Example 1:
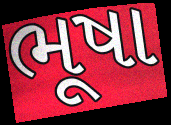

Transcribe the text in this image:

ભૂષા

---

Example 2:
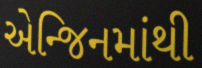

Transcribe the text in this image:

એન્જિનમાંથી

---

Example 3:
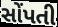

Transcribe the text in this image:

સોંપતી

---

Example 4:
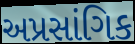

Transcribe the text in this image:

અપ્રસાંગિક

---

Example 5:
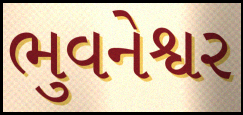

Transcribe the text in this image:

ભુવનેશ્વર